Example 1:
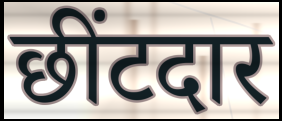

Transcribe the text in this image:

छींटदार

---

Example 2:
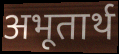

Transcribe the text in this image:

अभूतार्थ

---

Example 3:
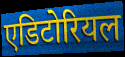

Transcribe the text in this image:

एडिटोरियल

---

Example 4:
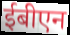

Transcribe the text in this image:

ईबीएन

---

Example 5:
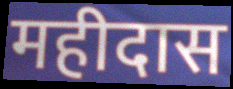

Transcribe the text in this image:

महीदास